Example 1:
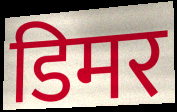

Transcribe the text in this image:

डिमर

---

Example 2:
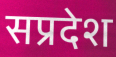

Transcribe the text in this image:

सप्रदेश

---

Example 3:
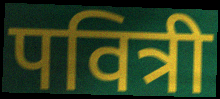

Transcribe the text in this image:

पवित्री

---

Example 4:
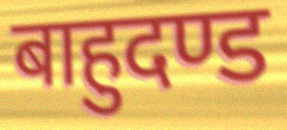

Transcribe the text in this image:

बाहुदण्ड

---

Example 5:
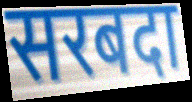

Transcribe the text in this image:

सरबदा